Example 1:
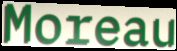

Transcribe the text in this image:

Moreau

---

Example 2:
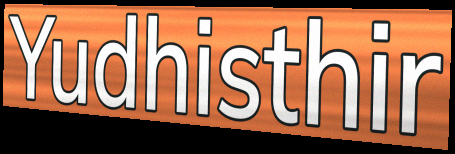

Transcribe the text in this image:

Yudhisthir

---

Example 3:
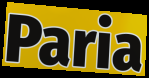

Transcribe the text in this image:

Paria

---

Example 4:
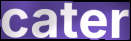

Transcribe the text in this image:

cater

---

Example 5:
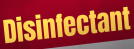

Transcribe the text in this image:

Disinfectant